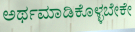
ಅರ್ಥಮಾಡಿಕೊಳ್ಳಬೇಕೇ